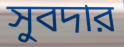
সুবদার